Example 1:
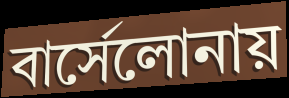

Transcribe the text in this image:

বার্সেলোনায়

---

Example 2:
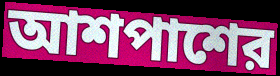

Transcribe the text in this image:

আশপাশের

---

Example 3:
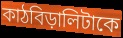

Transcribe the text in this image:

কাঠবিড়ালিটাকে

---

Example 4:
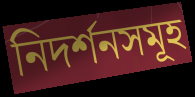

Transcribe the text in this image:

নিদর্শনসমূহ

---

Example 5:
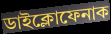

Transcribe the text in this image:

ডাইক্লোফেনাক